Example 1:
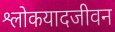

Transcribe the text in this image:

श्लोकयादजीवन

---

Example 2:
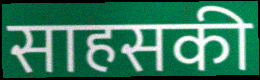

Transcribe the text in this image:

साहसकी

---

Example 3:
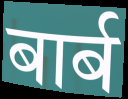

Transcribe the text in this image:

बार्ब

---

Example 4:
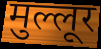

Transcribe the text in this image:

मुल्लूर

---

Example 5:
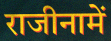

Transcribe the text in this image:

राजीनामें